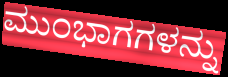
ಮುಂಭಾಗಗಳನ್ನು